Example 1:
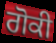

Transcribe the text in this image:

ਗੋਕੀ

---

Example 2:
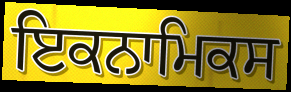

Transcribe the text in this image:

ਇਕਨਾਮਿਕਸ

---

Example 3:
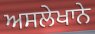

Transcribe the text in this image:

ਅਸਲੇਖਾਨੇ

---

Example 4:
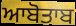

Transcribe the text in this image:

ਆਬੋਤਾਬ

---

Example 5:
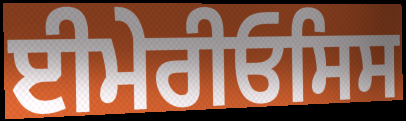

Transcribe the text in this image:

ਈਮੇਰੀਓਸਿਸ